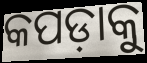
କପଡ଼ାକୁ